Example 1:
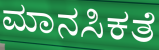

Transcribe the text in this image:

ಮಾನಸಿಕತೆ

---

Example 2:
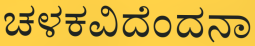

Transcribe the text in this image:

ಚಳಕವಿದೆಂದನಾ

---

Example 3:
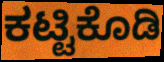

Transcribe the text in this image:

ಕಟ್ಟಿಕೊಡಿ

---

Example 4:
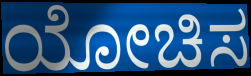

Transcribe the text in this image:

ಯೋಚಿಸ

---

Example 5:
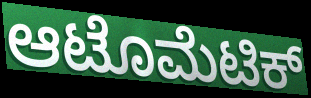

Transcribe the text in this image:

ಆಟೊಮೆಟಿಕ್